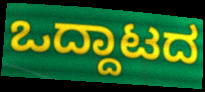
ಒದ್ದಾಟದ